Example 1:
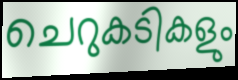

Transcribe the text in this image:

ചെറുകടികളും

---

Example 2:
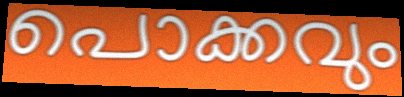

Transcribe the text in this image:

പൊക്കവും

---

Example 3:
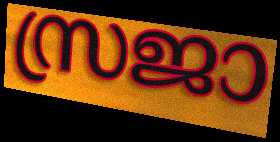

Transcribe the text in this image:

സ്രജാ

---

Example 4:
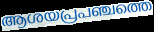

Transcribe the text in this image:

ആശയപ്രപഞ്ചത്തെ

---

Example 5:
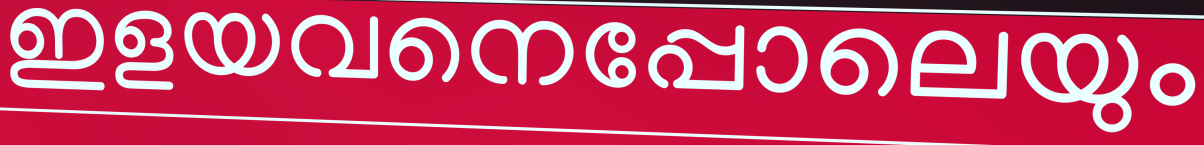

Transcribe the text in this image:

ഇളയവനെപ്പോലെയും